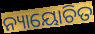
ନ୍ୟାୟୋଚିତ